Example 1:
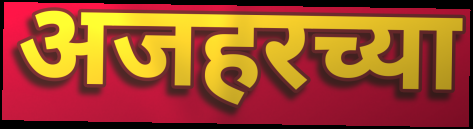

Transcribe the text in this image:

अजहरच्या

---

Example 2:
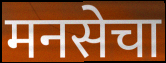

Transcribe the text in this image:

मनसेचा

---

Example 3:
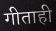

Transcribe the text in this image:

गीताही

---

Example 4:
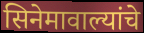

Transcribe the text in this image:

सिनेमावाल्यांचे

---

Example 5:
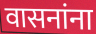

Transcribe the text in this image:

वासनांना